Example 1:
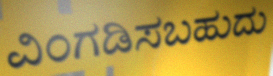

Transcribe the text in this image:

ವಿಂಗಡಿಸಬಹುದು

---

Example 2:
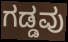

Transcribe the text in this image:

ಗಡ್ಡವು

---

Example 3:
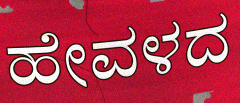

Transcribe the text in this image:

ಹೇವಳದ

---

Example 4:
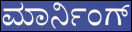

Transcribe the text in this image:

ಮಾರ್ನಿಂಗ್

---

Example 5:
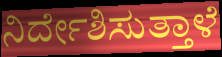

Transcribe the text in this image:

ನಿರ್ದೇಶಿಸುತ್ತಾಳೆ